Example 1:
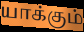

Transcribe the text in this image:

யாக்கும்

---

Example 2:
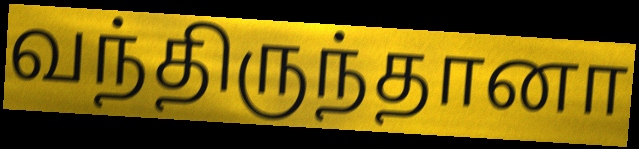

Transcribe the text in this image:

வந்திருந்தானா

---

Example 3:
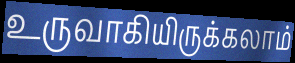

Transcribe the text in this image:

உருவாகியிருக்கலாம்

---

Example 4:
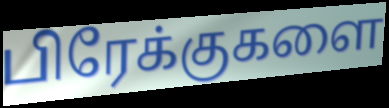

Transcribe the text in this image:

பிரேக்குகளை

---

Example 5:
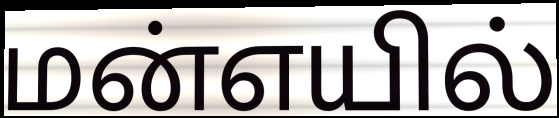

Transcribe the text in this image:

மன்எயில்